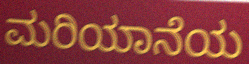
ಮರಿಯಾನೆಯ